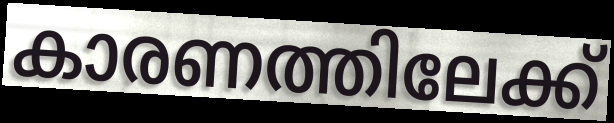
കാരണത്തിലേക്ക്